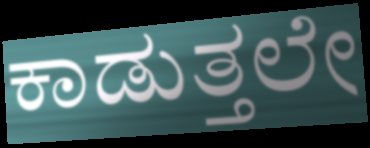
ಕಾಡುತ್ತಲೇ